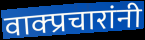
वाक्प्रचारांनी